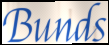
Bunds